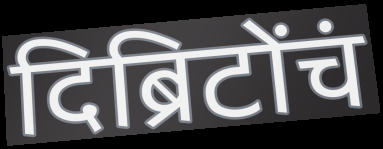
दिब्रिटोंचं